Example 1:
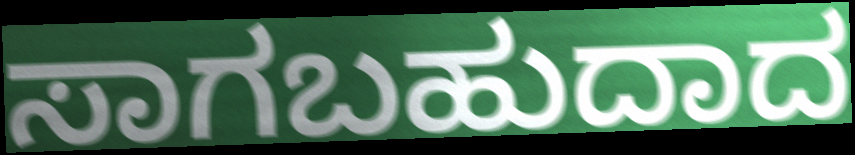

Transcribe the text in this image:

ಸಾಗಬಹುದಾದ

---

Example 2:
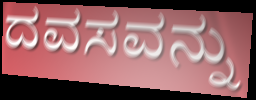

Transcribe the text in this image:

ದವಸವನ್ನು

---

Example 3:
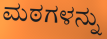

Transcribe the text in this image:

ಮಠಗಳನ್ನು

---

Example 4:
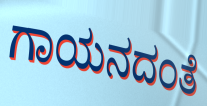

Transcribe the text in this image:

ಗಾಯನದಂತೆ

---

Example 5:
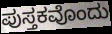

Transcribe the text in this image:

ಪುಸ್ತಕವೊಂದು